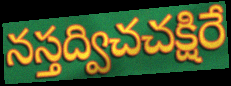
నస్తద్విచచక్షిరే